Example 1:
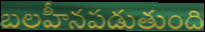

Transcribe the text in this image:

బలహీనపడుతుంది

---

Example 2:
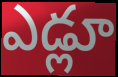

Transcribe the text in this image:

ఎడ్లూ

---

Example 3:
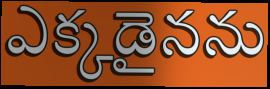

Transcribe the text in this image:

ఎక్కడైనను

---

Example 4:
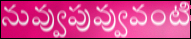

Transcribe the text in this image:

నువ్వుపువ్వువంటి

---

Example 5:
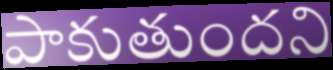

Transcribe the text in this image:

పాకుతుందని